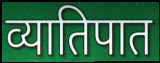
व्यातिपात